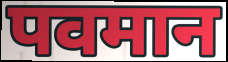
पवमान